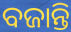
ବଜାନ୍ତି